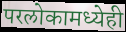
परलोकामध्येही